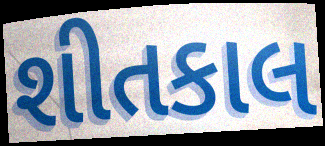
શીતકાલ